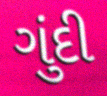
ગુંદી